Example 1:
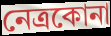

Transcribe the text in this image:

নেত্রকোনা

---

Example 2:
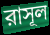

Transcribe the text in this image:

রাসূল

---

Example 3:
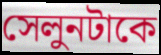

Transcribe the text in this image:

সেলুনটাকে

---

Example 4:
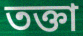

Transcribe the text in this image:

তক্তা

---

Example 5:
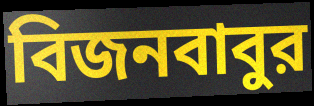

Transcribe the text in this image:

বিজনবাবুর